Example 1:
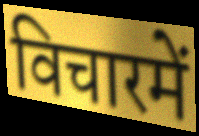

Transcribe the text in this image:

विचारमें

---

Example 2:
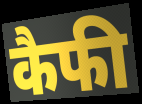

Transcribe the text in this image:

कैफी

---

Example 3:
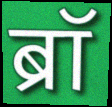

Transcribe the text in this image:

ब्रॉ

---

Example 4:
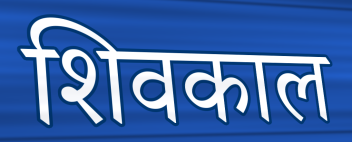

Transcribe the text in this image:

शिवकाल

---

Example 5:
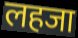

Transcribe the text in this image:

लहजा